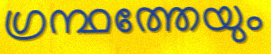
ഗ്രന്ഥത്തേയും